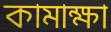
কামাক্ষা